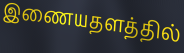
இணையதளத்தில்